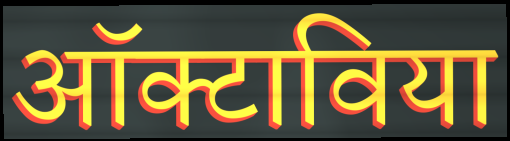
ऑक्टाविया